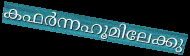
കഫർന്നഹൂമിലേക്കു